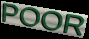
POOR